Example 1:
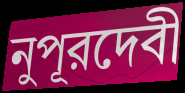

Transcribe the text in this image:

নুপূরদেবী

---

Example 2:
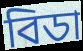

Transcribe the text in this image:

বিডা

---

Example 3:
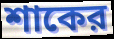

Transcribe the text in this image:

শাকের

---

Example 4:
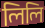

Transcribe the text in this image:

লিলি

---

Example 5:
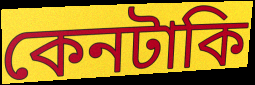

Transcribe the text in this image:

কেনটাকি